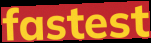
fastest